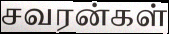
சவரன்கள்